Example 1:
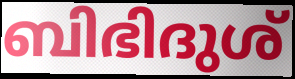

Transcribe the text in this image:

ബിഭിദുശ്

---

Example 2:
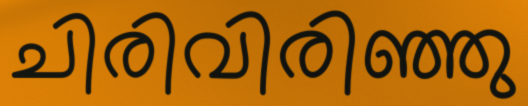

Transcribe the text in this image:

ചിരിവിരിഞ്ഞു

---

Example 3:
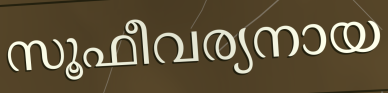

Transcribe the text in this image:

സൂഫീവര്യനായ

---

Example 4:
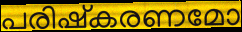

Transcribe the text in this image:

പരിഷ്കരണമോ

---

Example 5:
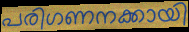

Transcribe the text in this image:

പരിഗണനക്കായി